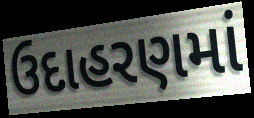
ઉદાહરણમાં